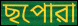
ছপোৱা